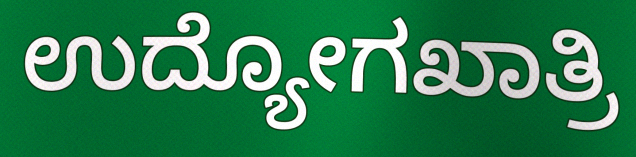
ಉದ್ಯೋಗಖಾತ್ರಿ